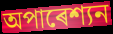
অপাৰেশ্যন